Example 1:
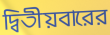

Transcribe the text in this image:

দ্বিতীয়বারের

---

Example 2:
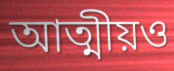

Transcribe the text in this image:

আত্মীয়ও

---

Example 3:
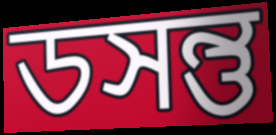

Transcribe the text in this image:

ডসন্তু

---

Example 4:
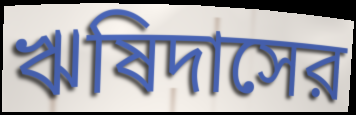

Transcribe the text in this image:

ঋষিদাসের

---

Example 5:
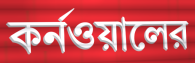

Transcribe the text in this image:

কর্নওয়ালের